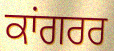
ਕਾਂਗਰਰ